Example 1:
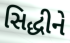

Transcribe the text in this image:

સિદ્ધીને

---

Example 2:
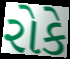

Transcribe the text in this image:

રોકે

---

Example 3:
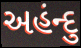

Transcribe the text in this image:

અહંન્દુ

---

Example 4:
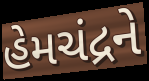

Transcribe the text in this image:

હેમચંદ્રને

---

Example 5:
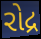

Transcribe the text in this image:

રોદ્ર